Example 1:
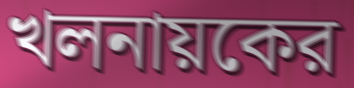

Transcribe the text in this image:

খলনায়কের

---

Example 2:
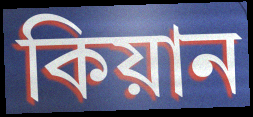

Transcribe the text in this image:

কিয়ান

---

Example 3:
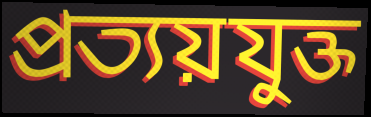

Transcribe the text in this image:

প্রত্যয়যুক্ত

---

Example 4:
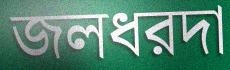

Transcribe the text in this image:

জলধরদা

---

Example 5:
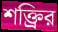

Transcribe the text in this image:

শক্ত্রির